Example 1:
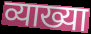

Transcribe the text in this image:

व्याख्या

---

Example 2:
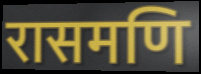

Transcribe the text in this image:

रासमणि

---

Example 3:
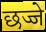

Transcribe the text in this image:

छज्जे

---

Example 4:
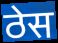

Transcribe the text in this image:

ठेस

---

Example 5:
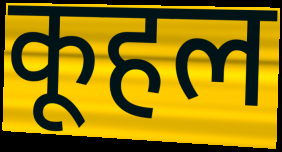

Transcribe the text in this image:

कूहल